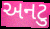
અનટુ